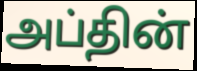
அப்தின்